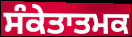
ਸੰਕੇਤਾਤਮਕ